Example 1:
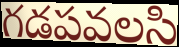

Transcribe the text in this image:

గడపవలసి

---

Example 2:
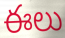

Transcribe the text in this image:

ఈలు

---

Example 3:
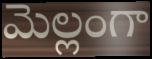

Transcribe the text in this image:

మెల్లంగా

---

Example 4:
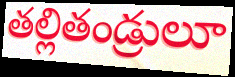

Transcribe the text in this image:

తల్లితండ్రులూ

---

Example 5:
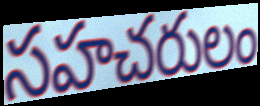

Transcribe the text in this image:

సహచరులం